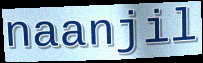
naanjil